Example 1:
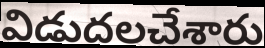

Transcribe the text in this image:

విడుదలచేశారు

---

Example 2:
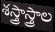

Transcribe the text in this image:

శస్త్రాస్త్రాల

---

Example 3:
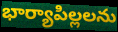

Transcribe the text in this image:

భార్యాపిల్లలను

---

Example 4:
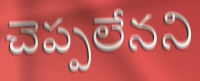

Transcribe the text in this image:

చెప్పలేనని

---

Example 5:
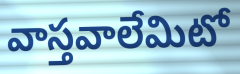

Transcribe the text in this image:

వాస్తవాలేమిటో